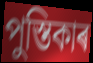
পুস্তিকাৰ